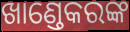
ଖାଣ୍ଡେକରଙ୍କ